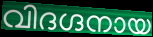
വിദഗ്ദനായ